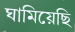
ঘামিয়েছি